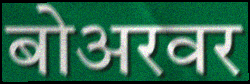
बोअरवर